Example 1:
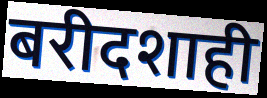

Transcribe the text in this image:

बरीदशाही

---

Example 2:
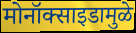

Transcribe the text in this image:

मोनॉक्साइडामुळे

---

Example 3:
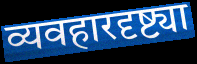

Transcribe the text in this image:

व्यवहारदृष्ट्या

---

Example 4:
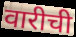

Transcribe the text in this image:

वारीची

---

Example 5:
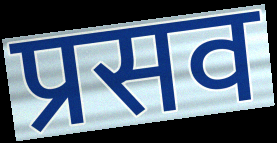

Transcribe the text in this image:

प्रसव